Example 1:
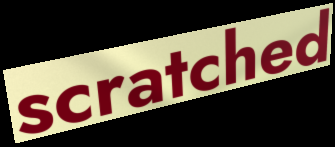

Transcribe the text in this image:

scratched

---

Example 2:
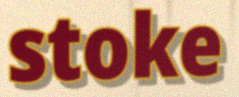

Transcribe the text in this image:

stoke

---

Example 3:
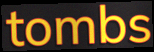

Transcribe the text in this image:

tombs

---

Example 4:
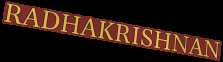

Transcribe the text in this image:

RADHAKRISHNAN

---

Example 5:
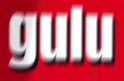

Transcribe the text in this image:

gulu